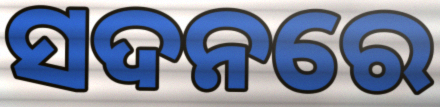
ସଦନରେ